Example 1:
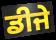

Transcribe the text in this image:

ਡੀਜੇ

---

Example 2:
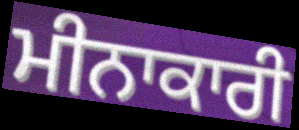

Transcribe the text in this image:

ਮੀਨਾਕਾਰੀ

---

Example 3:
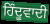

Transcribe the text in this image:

ਹਿੰਦੂਵਾਦੀ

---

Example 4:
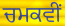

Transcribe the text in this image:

ਚਮਕਵੀਂ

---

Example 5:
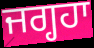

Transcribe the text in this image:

ਜਗ੍ਹਹਾ